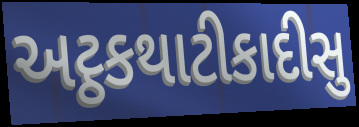
અટ્ઠકથાટીકાદીસુ